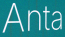
Anta